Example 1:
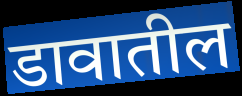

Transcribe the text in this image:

डावातील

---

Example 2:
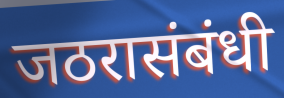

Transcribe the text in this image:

जठरासंबंधी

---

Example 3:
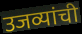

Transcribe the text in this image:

उजव्यांची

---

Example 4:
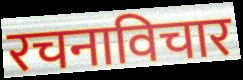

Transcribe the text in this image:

रचनाविचार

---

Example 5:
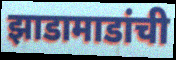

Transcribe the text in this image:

झाडामाडांची